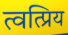
त्वत्प्रिय